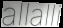
allalli